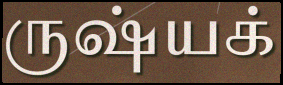
ருஷ்யக்